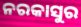
ନରକାସୁର